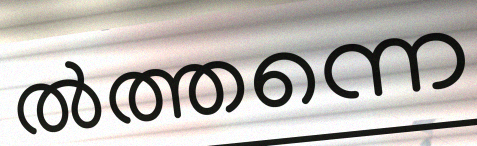
ൽത്തന്നെ